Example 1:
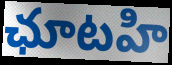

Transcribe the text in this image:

ఛూటహి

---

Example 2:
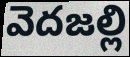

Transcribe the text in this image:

వెదజల్లి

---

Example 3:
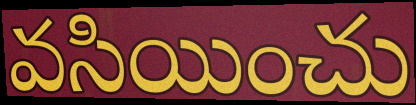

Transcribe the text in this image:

వసియించు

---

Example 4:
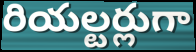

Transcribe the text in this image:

రియల్టర్లుగా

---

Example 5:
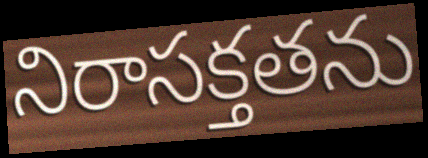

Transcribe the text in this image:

నిరాసక్తతను